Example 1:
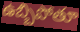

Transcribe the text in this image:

ఉబ్బిపోతూ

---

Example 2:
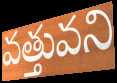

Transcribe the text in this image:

వత్తువని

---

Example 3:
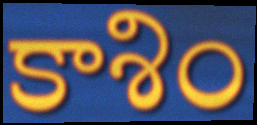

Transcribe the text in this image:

కాశిం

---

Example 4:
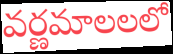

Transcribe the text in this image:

వర్ణమాలలలో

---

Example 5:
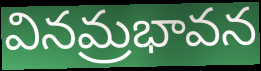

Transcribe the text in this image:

వినమ్రభావన